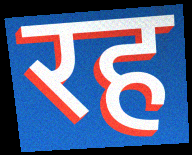
रह